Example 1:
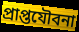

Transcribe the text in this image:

প্রাপ্তযৌবনা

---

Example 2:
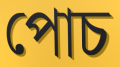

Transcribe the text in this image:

পোচ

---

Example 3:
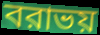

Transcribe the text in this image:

বরাভয়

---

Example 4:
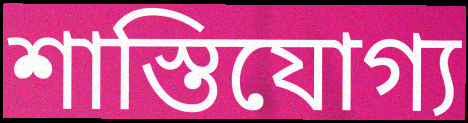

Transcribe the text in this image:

শাস্তিযোগ্য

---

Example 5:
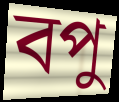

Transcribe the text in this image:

বপু